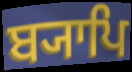
ਬ੍ਯਾਪਿ